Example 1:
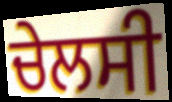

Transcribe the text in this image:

ਚੇਲਸੀ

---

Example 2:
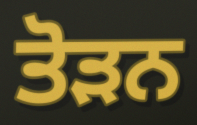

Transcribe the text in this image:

ਤੋੜਨ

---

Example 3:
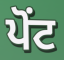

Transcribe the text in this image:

ਪੋਂਟ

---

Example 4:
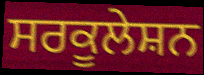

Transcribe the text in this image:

ਸਰਕੂਲੇਸ਼ਨ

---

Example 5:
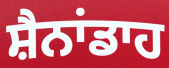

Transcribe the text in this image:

ਸ਼ੈਨਾਂਡਾਹ